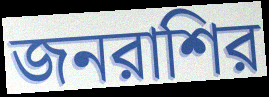
জনরাশির